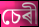
চেৰী